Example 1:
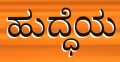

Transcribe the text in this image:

ಹುದ್ಧೆಯ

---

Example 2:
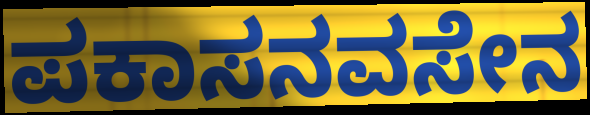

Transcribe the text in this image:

ಪಕಾಸನವಸೇನ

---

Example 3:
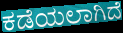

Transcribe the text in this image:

ಕಡೆಯಲಾಗಿದೆ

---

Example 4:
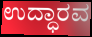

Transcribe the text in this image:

ಉದ್ಧಾರವ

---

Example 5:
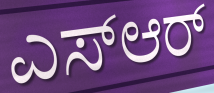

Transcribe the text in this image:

ಎಸ್ಆರ್